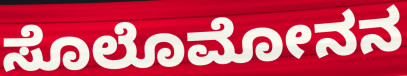
ಸೊಲೊಮೋನನ